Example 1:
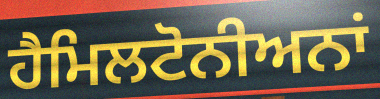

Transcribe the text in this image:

ਹੈਮਿਲਟੋਨੀਅਨਾਂ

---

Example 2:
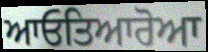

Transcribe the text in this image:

ਆਓਤਿਆਰੋਆ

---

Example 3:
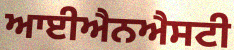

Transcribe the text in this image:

ਆਈਐਨਐਸਟੀ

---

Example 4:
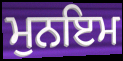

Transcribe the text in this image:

ਮੁਨਇਮ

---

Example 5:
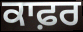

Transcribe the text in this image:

ਕਾਫ਼ਰ